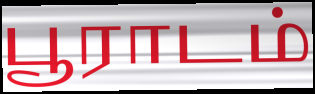
பூராடம்